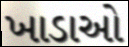
ખાડાઓ